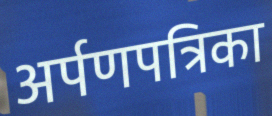
अर्पणपत्रिका